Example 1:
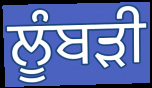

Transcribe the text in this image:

ਲੂੰਬੜੀ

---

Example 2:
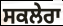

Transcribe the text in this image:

ਸਕਲੇਰਾ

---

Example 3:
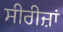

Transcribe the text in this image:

ਸੀਰੀਜ਼ਾਂ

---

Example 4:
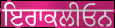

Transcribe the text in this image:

ਇਰਾਕਲੀਓਨ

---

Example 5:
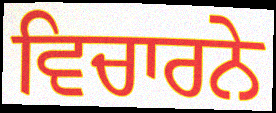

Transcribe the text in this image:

ਵਿਚਾਰਨੇ